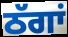
ਠੱਗਾਂ